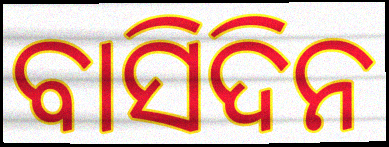
ବାସିଦିନ